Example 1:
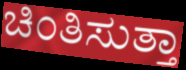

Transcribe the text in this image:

ಚಿಂತಿಸುತ್ತಾ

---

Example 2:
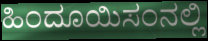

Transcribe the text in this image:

ಹಿಂದೂಯಿಸಂನಲ್ಲಿ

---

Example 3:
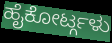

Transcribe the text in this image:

ಹೈಕೋರ್ಟ್ಗಳು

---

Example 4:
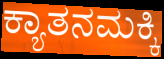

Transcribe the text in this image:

ಕ್ಯಾತನಮಕ್ಕಿ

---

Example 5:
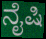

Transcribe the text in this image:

ನೈಷಿ